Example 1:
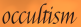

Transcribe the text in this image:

occultism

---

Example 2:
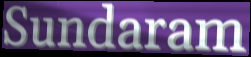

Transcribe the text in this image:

Sundaram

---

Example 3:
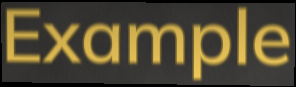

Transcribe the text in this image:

Example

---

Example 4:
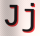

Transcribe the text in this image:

Jj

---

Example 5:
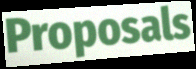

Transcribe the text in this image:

Proposals